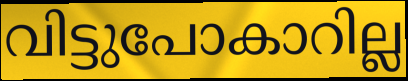
വിട്ടുപോകാറില്ല